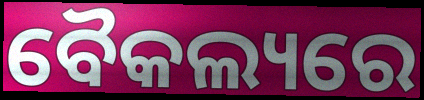
ବୈକଲ୍ୟରେ